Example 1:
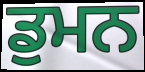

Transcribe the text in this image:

ਡੁਮਨ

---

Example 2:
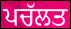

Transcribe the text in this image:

ਪਚੱਲਤ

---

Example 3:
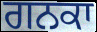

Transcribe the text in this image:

ਗਨਕਾ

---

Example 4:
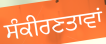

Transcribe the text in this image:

ਸੰਕੀਰਣਤਾਵਾਂ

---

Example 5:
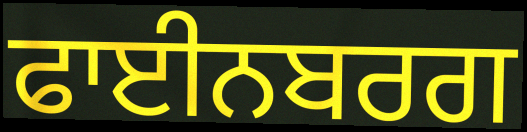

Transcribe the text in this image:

ਫਾਈਨਬਰਗ